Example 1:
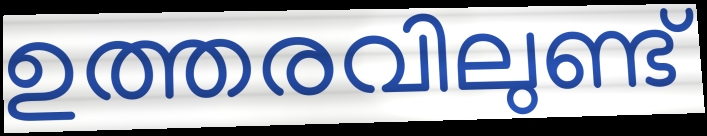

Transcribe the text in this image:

ഉത്തരവിലുണ്ട്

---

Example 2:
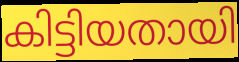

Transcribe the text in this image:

കിട്ടിയതായി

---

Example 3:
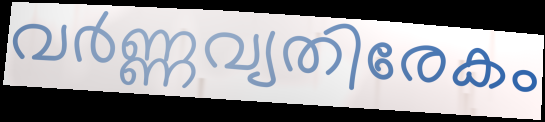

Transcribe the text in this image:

വർണ്ണവ്യതിരേകം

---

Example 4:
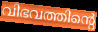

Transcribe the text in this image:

വിഭവത്തിന്റെ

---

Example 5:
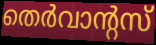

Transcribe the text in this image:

തെർവാന്റസ്